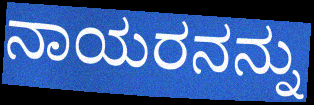
ನಾಯರನನ್ನು